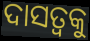
ଦାସତ୍ୱକୁ